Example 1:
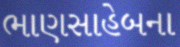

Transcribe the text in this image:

ભાણસાહેબના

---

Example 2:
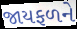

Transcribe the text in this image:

જાયફળને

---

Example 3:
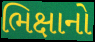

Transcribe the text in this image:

ભિક્ષાનો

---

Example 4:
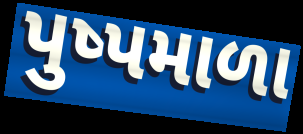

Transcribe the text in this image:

પુષ્પમાળા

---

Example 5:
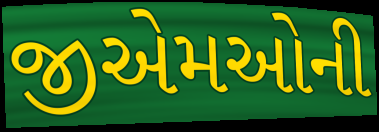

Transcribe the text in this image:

જીએમઓની